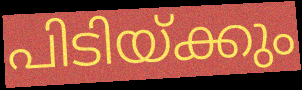
പിടിയ്ക്കും